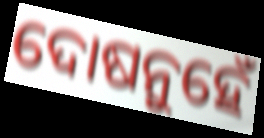
ଦୋଷନୁହେଁ